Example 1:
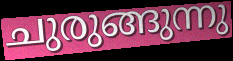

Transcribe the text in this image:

ചുരുങ്ങുന്നു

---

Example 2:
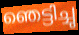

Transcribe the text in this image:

ഞെട്ടിച്ചു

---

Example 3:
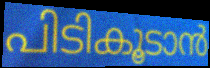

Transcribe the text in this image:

പിടികൂടാൻ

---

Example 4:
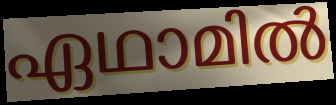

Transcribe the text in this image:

ഏഥാമിൽ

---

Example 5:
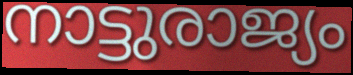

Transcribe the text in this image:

നാട്ടുരാജ്യം